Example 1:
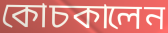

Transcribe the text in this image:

কোচকালেন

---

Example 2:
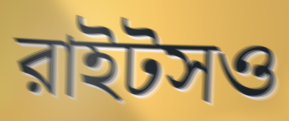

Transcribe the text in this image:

রাইটসও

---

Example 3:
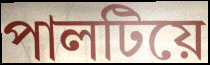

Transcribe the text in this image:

পালটিয়ে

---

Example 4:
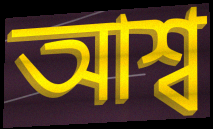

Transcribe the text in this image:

আশ্ব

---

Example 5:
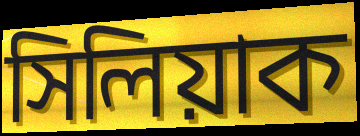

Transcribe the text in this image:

সিলিয়াক